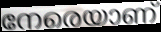
നേരെയാണ്